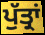
ਪੁੱਤ੍ਰਾਂ